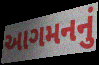
આગમનનું